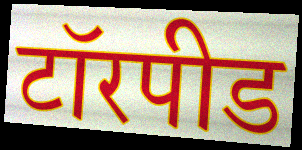
टॉरपीड